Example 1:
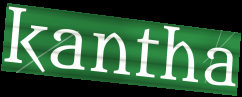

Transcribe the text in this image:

kantha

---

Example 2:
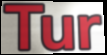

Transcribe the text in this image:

Tur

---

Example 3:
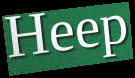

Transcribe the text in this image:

Heep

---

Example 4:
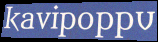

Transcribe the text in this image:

kavipoppu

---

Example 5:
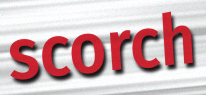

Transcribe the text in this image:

scorch